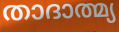
താദാത്മ്യ